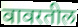
वावरतील